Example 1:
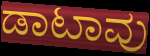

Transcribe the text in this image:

ಡಾಟಾವು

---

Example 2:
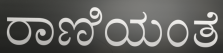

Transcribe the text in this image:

ರಾಣಿಯಂತೆ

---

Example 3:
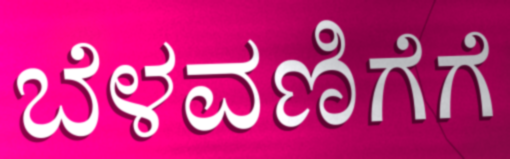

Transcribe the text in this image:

ಬೆಳವಣಿಗೆಗೆ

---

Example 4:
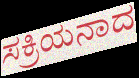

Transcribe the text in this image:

ಸಕ್ರಿಯನಾದ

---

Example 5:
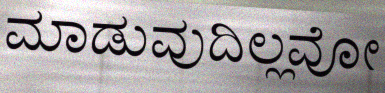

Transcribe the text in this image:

ಮಾಡುವುದಿಲ್ಲವೋ